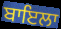
ਬਾਇਲਾ